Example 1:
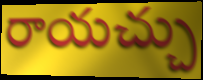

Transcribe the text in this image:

రాయచ్చు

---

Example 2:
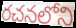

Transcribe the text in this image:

రచనలోని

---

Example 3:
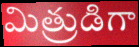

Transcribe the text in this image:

మిత్రుడిగా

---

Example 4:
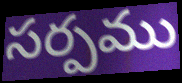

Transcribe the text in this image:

సర్పము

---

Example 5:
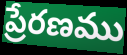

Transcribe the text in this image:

ప్రేరణము